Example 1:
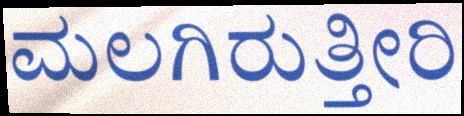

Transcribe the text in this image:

ಮಲಗಿರುತ್ತೀರಿ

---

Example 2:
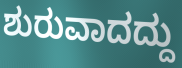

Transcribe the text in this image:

ಶುರುವಾದದ್ದು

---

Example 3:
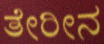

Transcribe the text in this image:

ತೇರೀನ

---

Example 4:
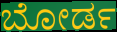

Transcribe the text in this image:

ಬೋರ್ಡ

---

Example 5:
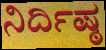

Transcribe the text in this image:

ನಿರ್ದಿಷ್ಠ